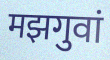
मझगुवां